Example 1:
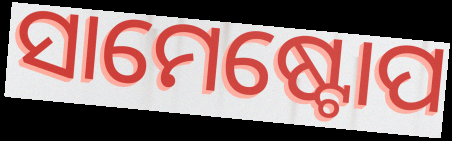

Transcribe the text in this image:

ସାମେଷ୍ଟୋପ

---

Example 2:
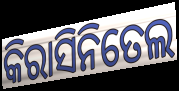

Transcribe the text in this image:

କିରାସିନିତେଲ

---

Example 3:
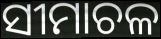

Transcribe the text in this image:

ସୀମାଚଳ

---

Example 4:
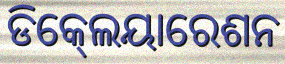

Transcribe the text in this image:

ଡିକ୍‍ଲେୟାରେଶନ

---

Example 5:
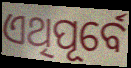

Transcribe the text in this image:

ଏଥିପୂର୍ବେ